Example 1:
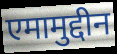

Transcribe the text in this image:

एमामुद्दीन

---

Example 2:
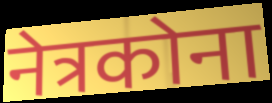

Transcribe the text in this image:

नेत्रकोना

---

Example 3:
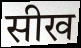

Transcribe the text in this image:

सीख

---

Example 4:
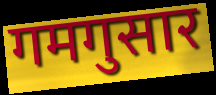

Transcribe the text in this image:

गमगुसार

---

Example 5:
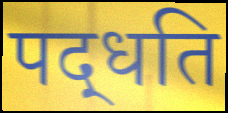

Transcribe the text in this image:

पद्धति